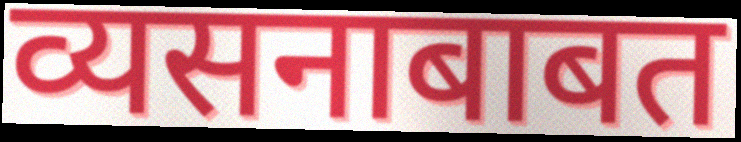
व्यसनाबाबत